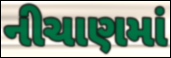
નીચાણમાં